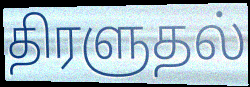
திரளுதல்